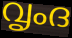
വൃംദ